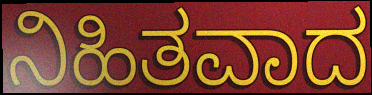
ನಿಹಿತವಾದ